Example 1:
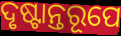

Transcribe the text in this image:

ଦୃଷ୍ଟାନ୍ତରୂପେ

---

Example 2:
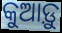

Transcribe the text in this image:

କୁଆଡ଼ୁ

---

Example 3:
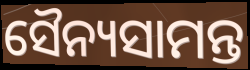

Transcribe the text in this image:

ସୈନ୍ୟସାମନ୍ତ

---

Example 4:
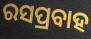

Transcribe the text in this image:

ରସପ୍ରବାହ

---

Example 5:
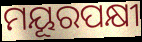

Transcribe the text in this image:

ମୟୂରପକ୍ଷୀ